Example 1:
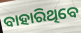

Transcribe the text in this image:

ବାହାରିଥିବେ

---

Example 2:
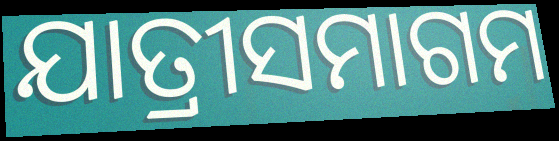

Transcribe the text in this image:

ଯାତ୍ରୀସମାଗମ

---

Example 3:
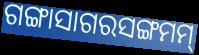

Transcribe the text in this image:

ଗଙ୍ଗାସାଗରସଙ୍ଗମମ୍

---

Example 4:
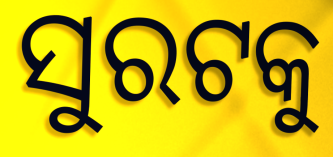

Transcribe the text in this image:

ସୁରଟକୁ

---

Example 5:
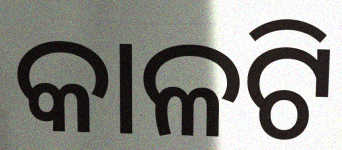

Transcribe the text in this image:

କାଳଟି